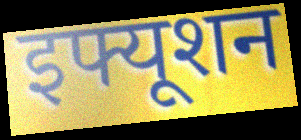
इफ्यूशन